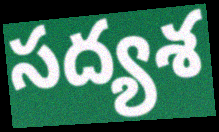
సద్యశ